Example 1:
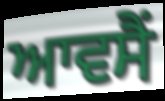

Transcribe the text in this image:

ਆਵਸੈਂ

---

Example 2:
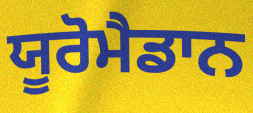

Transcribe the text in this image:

ਯੂਰੋਮੈਡਾਨ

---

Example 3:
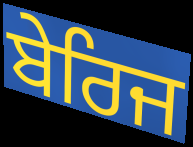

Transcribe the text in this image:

ਬੇਰਿਜ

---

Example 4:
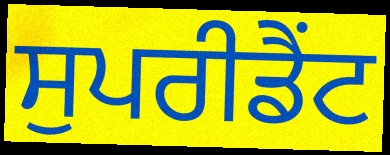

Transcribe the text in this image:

ਸੁਪਰੀਡੈਂਟ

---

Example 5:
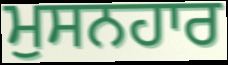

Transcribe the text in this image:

ਮੁਸਨਹਾਰ